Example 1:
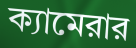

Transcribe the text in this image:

ক্যামেরার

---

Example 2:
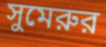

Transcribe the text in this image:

সুমেরুর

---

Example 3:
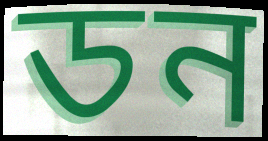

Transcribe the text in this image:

ডন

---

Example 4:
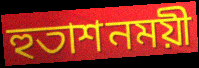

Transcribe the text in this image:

হুতাশনময়ী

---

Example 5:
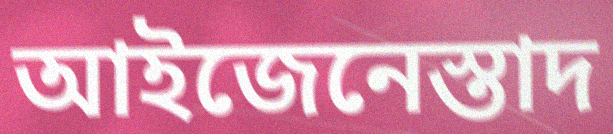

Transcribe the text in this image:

আইজেনেস্তাদ